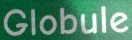
Globule